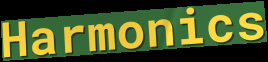
Harmonics